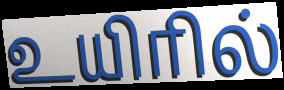
உயிரில்